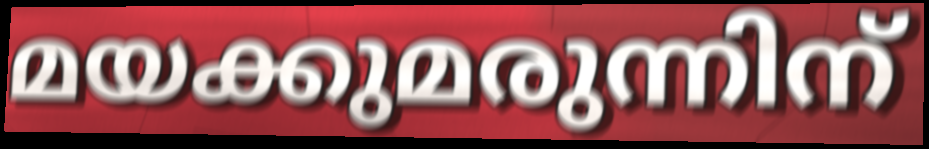
മയക്കുമരുന്നിന്